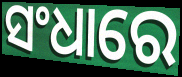
ସଂଧାରେ